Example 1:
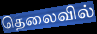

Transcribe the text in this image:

தெலைவில்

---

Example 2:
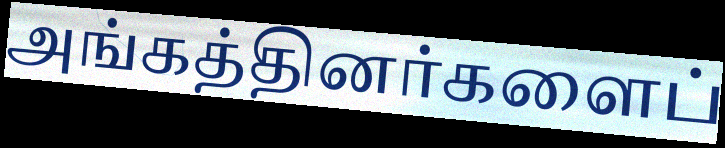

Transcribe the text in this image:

அங்கத்தினர்களைப்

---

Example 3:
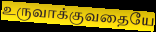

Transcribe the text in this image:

உருவாக்குவதையே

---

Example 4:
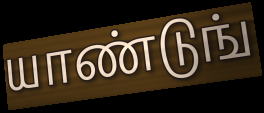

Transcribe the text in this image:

யாண்டுங்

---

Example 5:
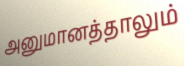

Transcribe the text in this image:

அனுமானத்தாலும்